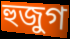
হুজুগ